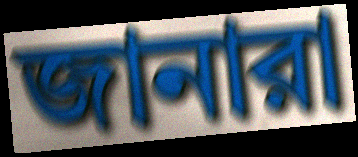
জানারা